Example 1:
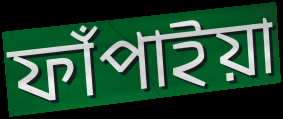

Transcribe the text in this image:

ফাঁপাইয়া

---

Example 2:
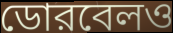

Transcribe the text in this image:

ডোরবেলও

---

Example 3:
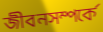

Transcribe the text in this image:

জীবনসম্পর্কে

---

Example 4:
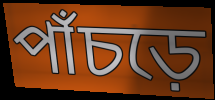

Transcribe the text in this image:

পাঁচড়ে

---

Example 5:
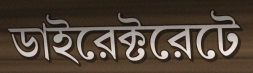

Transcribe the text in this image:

ডাইরেক্টরেটে